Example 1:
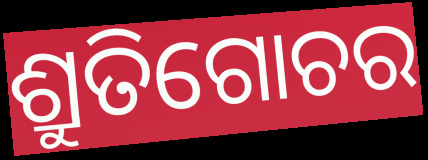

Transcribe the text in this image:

ଶ୍ରୁତିଗୋଚର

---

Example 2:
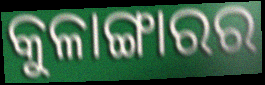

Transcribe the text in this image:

କୁଳାଙ୍ଗାରର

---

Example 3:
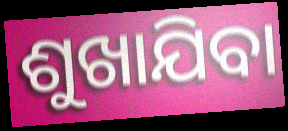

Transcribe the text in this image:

ଶୁଖାଯିବା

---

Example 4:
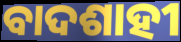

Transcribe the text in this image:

ବାଦଶାହୀ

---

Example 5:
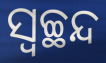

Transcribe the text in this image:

ସ୍ୱଚ୍ଛନ୍ଦ